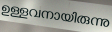
ഉള്ളവനായിരുന്നു